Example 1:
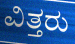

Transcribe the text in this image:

ವಿತ್ತರು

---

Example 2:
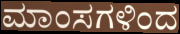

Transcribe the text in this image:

ಮಾಂಸಗಳಿಂದ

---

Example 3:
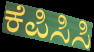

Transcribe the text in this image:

ಕೆಪಿಸಿಸಿ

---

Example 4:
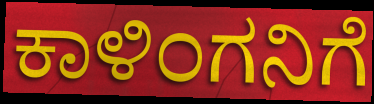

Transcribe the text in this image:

ಕಾಳಿಂಗನಿಗೆ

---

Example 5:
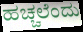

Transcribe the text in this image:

ಹಚ್ಚಲೆಂದು